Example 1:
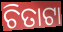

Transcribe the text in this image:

ଚିତାଟା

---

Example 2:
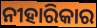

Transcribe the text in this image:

ନୀହାରିକାର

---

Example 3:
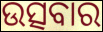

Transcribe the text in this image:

ଉତ୍ସବାର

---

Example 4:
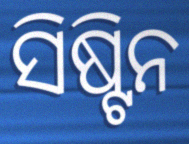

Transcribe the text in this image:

ସିଷ୍ଟିନ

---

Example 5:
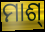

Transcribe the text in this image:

ମାଶ୍